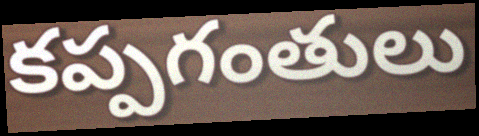
కప్పగంతులు